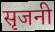
सृजनी